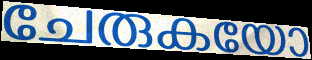
ചേരുകയോ